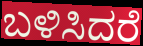
ಬಳಿಸಿದರೆ